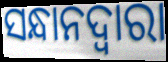
ସନ୍ଧାନଦ୍ୱାରା